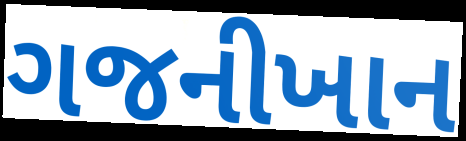
ગજનીખાન